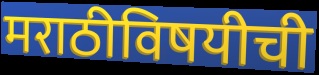
मराठीविषयीची